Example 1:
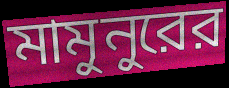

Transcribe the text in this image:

মামুনুরের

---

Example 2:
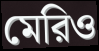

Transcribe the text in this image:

মেরিও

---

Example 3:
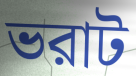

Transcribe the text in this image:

ভরাট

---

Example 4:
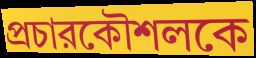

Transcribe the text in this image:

প্রচারকৌশলকে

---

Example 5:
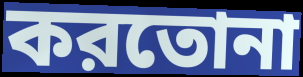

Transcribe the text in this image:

করতোনা